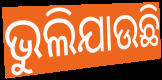
ଭୁଲିଯାଉଛି